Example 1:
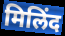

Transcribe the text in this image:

मिलिंद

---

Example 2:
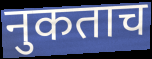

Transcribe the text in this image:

नुकताच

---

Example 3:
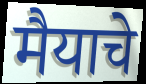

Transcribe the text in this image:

मैयाचे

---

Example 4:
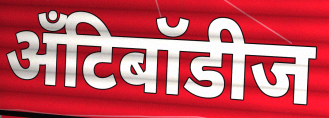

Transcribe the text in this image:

अँटिबॉडीज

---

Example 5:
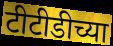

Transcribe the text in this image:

टीटीडीच्या